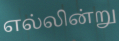
எல்லின்று